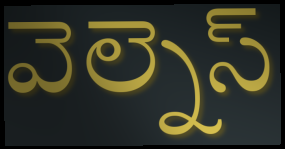
వెల్నెస్